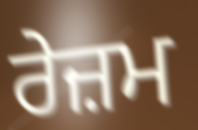
ਰੇਜ਼ਮ